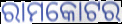
ରାମକୋଟର